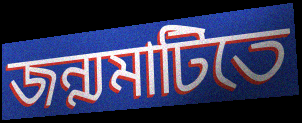
জন্মমাটিতে